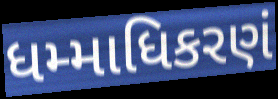
ધમ્માધિકરણં